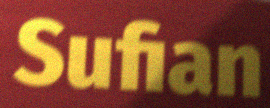
Sufian